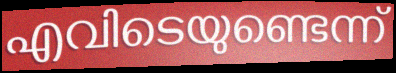
എവിടെയുണ്ടെന്ന്